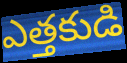
ఎత్తకుడి